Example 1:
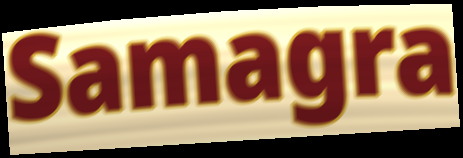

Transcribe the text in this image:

Samagra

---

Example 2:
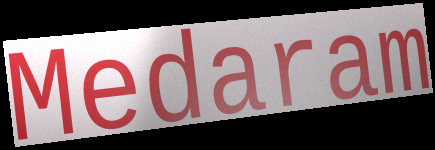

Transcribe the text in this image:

Medaram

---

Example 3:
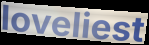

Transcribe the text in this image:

loveliest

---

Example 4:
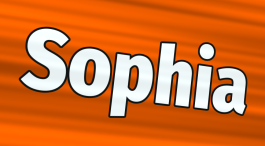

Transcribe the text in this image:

Sophia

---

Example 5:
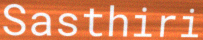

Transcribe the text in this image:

Sasthiri